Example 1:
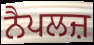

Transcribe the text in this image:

ਨੈਪਲਜ਼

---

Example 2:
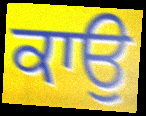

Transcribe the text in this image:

ਕਾਉ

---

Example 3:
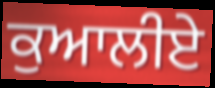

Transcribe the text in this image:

ਕੁਆਲੀਏ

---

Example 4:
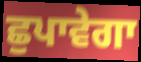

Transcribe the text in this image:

ਛੁਪਾਵੇਗਾ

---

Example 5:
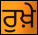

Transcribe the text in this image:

ਰੁਖ਼ੇ